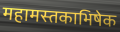
महामस्तकाभिषेक